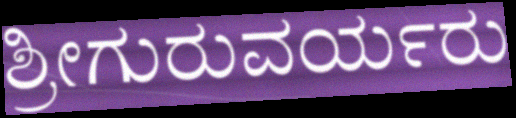
ಶ್ರೀಗುರುವರ್ಯರು